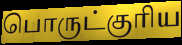
பொருட்குரிய